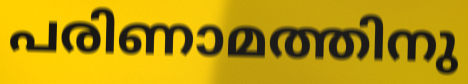
പരിണാമത്തിനു